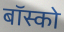
बॉस्को